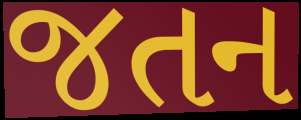
જતન